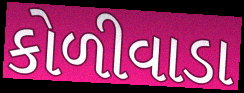
કોળીવાડા